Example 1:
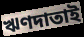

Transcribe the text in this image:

ঋণদাতাই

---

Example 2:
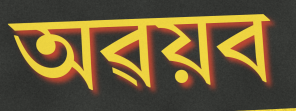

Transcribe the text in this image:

অৱয়ব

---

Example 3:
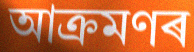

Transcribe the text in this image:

আক্ৰমণৰ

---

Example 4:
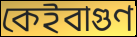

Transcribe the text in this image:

কেইবাগুণ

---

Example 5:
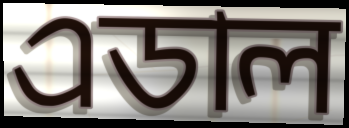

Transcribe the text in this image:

এডাল